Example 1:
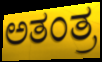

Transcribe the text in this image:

ಅತಂತ್ರ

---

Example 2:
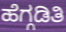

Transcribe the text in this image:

ಹೆಗ್ಗಡಿತಿ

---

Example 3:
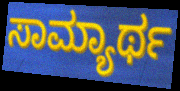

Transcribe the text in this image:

ಸಾಮ್ಯಾರ್ಥ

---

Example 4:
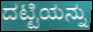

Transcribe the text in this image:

ದಟ್ಟಿಯನ್ನು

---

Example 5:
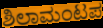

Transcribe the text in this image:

ಶಿಲಾಮಂಟಪ